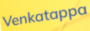
Venkatappa